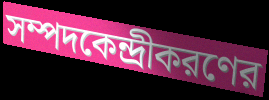
সম্পদকেন্দ্রীকরণের